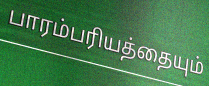
பாரம்பரியத்தையும்